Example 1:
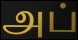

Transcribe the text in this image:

அப்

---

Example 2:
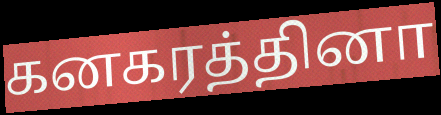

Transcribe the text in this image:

கனகரத்தினா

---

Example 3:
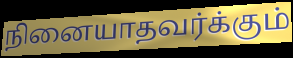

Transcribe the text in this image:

நினையாதவர்க்கும்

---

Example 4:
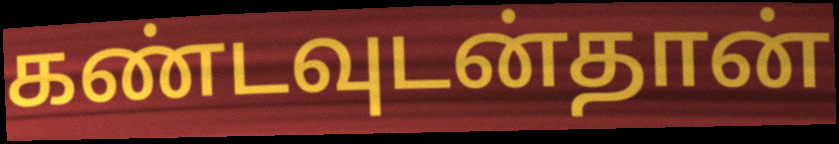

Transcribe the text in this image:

கண்டவுடன்தான்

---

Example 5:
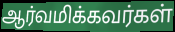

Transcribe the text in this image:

ஆர்வமிக்கவர்கள்